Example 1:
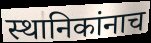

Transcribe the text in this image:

स्थानिकांनाच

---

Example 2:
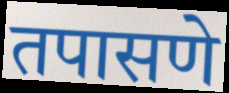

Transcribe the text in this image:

तपासणे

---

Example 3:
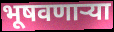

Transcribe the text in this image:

भूषवणाऱ्या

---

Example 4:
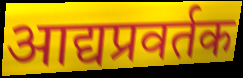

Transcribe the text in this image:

आद्यप्रवर्तक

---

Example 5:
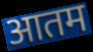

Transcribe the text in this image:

आतम